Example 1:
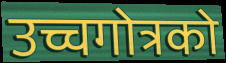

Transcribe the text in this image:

उच्चगोत्रको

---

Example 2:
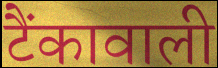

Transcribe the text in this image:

टैंकावाली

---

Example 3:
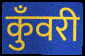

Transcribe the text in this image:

कुँवरी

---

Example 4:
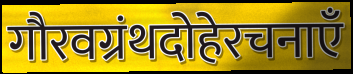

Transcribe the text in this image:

गौरवग्रंथदोहेरचनाएँ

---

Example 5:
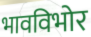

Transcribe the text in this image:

भावविभोर